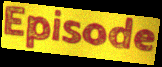
Episode